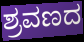
ಶ್ರವಣದ